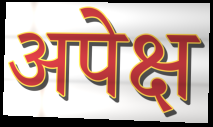
अपेक्ष